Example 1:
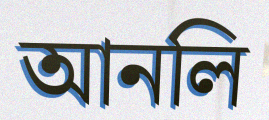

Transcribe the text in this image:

আনলি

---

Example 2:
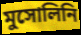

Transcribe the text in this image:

মুসোলিনি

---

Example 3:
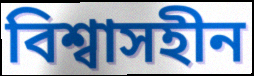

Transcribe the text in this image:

বিশ্বাসহীন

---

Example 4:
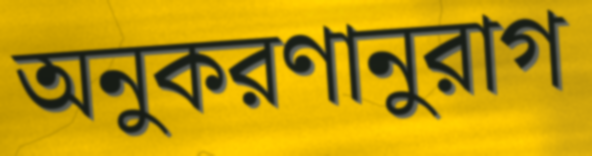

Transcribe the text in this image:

অনুকরণানুরাগ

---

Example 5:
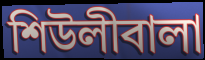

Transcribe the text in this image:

শিউলীবালা